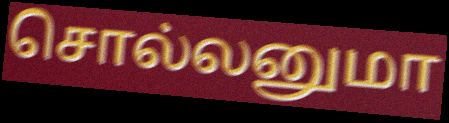
சொல்லனுமா